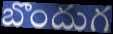
బొందుగ